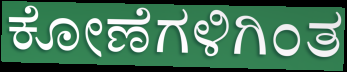
ಕೋಣೆಗಳಿಗಿಂತ